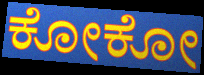
ಕೋಕೋ